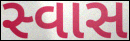
સ્વાસ